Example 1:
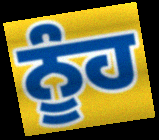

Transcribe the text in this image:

ਨੂੰਹ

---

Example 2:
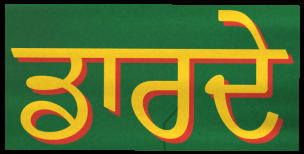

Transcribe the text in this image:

ਡਾਰਦੇ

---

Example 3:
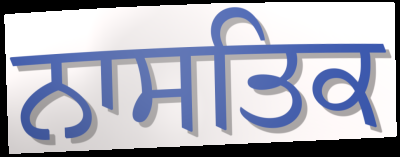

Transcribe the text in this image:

ਨਾਸਤਿਕ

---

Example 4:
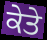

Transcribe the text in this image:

ਕੇਤੇ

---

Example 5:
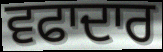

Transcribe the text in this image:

ਵਫਾਦਾਰ